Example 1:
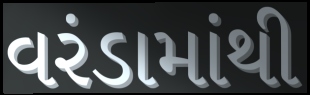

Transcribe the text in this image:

વરંડામાંથી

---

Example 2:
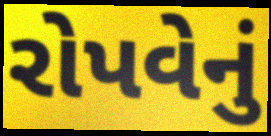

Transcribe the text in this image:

રોપવેનું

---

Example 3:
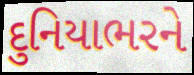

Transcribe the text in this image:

દુનિયાભરને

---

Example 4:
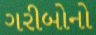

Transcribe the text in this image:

ગરીબોનો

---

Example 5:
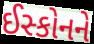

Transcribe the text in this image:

ઈસ્કોનને